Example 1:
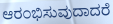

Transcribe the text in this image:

ಆರಂಭಿಸುವುದಾದರೆ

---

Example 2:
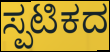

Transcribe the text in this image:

ಸ್ಪಟಿಕದ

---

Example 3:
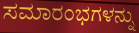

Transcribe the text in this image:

ಸಮಾರಂಭಗಳನ್ನು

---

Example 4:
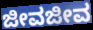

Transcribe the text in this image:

ಜೀವಜೀವ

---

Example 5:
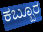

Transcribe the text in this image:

ಕಬ್ಬೂರ